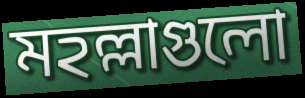
মহল্লাগুলো